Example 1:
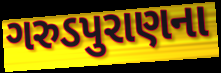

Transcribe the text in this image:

ગરુડપુરાણના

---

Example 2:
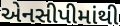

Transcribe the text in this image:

એનસીપીમાંથી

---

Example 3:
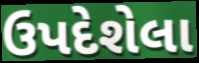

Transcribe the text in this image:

ઉપદેશેલા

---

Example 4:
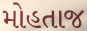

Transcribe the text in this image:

મોહતાજ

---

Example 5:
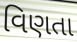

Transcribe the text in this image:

વિણતા